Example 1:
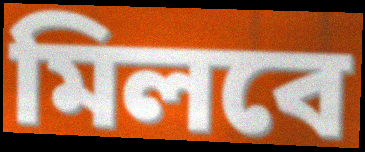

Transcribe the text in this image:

মিলবে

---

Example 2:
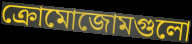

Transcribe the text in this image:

ক্রোমোজোমগুলো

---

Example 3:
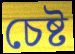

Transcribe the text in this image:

চেষ্ট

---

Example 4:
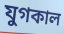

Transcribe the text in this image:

যুগকাল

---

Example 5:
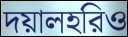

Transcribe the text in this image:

দয়ালহরিও